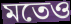
মতেও